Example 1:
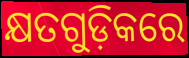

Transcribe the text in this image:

କ୍ଷତଗୁଡ଼ିକରେ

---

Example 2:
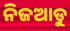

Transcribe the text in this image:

ନିଜଆଡୁ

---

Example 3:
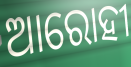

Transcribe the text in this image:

ଆରୋହୀ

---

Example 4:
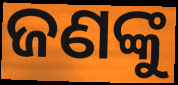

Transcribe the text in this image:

ଜଣଙ୍କୁ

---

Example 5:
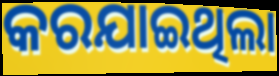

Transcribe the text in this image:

କରଯାଇଥିଲା